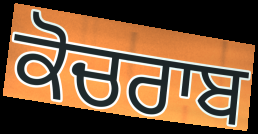
ਕੋਚਰਾਬ